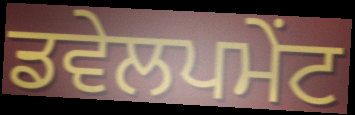
ਡਵੇਲਪਮੇਂਟ